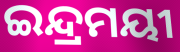
ଇନ୍ଦ୍ରମୟୀ